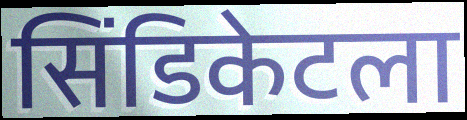
सिंडिकेटला